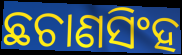
ଛଚାଣସିଂହ